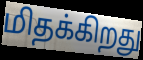
மிதக்கிறது